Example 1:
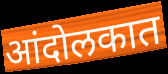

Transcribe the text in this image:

आंदोलकात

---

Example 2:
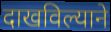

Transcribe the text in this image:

दाखविल्याने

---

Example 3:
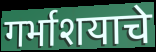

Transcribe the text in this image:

गर्भाशयाचे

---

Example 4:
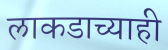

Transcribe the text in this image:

लाकडाच्याही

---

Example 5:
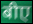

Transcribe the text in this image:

बीए